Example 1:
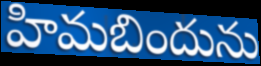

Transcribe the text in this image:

హిమబిందును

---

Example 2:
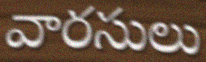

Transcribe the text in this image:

వారసులు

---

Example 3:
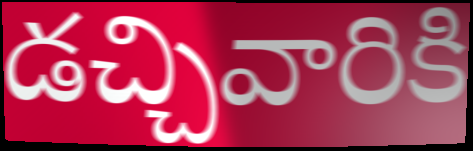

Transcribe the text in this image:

డచ్చివారికి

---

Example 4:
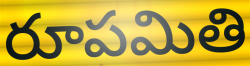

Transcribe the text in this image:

రూపమితి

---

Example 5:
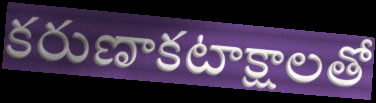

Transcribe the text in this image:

కరుణాకటాక్షాలతో